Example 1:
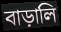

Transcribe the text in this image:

বাড়ালি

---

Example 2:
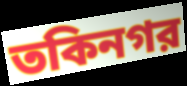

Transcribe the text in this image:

তকিনগর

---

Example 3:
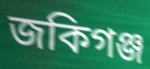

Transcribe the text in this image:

জকিগঞ্জ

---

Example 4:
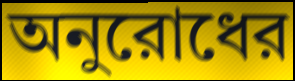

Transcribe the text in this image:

অনুরোধের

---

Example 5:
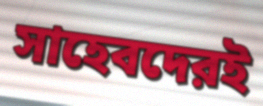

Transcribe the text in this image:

সাহেবদেরই